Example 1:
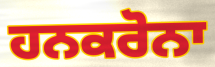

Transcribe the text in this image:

ਹਨਕਰੋਨਾ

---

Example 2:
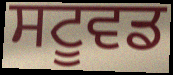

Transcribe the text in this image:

ਸਟੂਵਡ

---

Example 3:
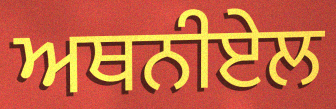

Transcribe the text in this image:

ਅਥਨੀਏਲ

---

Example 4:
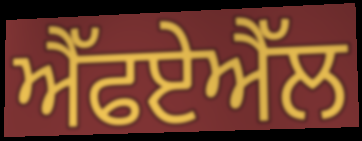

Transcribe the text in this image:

ਐੱਫਏਐੱਲ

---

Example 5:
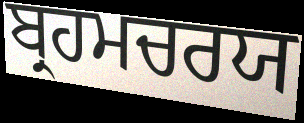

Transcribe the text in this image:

ਬ੍ਰਹਮਚਰਯ